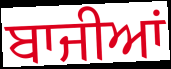
ਬਾਜੀਆਂ